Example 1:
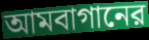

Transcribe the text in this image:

আমবাগানের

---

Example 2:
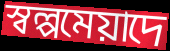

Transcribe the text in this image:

স্বল্পমেয়াদে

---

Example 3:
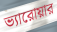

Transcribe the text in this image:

ভ্যারোয়ার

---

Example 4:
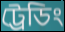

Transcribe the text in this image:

ট্রেডিং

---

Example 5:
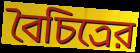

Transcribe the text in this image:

বৈচিত্রের